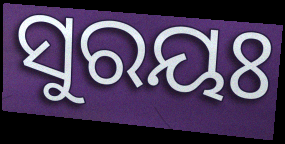
ସୁରୟଃ